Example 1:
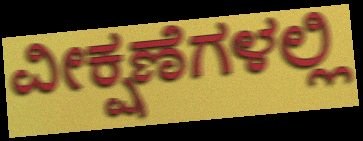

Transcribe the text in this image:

ವೀಕ್ಷಣೆಗಳಲ್ಲಿ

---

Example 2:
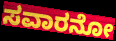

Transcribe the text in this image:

ಸವಾರನೋ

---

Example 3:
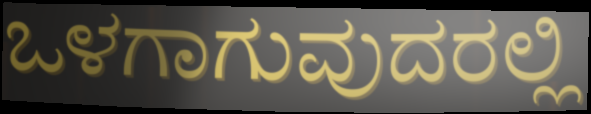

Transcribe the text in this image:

ಒಳಗಾಗುವುದರಲ್ಲಿ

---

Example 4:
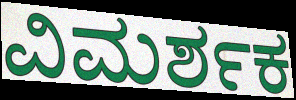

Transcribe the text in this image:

ವಿಮರ್ಶಕ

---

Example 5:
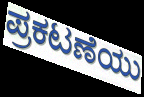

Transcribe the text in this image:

ಪ್ರಕಟಣೆಯು